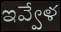
ఇవ్వేళ